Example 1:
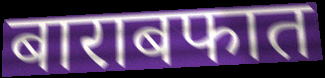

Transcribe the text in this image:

बाराबफात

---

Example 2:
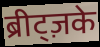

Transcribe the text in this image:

ब्रीट्ज़के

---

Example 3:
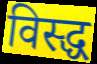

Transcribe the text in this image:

विस्द्ध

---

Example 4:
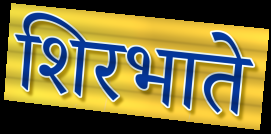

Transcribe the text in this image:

शिरभाते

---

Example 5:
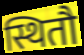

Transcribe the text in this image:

स्थितौ